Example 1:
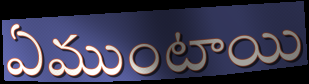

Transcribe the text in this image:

ఏముంటాయి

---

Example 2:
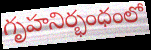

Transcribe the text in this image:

గృహనిర్భంధంలో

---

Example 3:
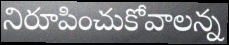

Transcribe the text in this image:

నిరూపించుకోవాలన్న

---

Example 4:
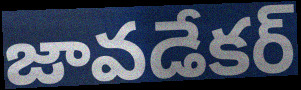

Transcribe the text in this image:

జావడేకర్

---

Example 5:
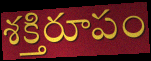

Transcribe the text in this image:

శక్తిరూపం